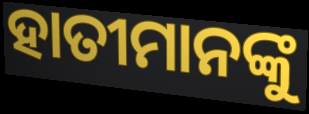
ହାତୀମାନଙ୍କୁ